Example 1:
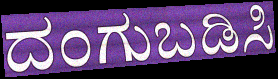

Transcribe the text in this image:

ದಂಗುಬಡಿಸಿ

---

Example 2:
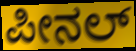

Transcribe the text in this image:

ಪೀನಲ್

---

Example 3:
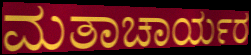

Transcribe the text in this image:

ಮತಾಚಾರ್ಯರ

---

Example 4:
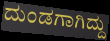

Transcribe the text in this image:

ದುಂಡಗಾಗಿದ್ದು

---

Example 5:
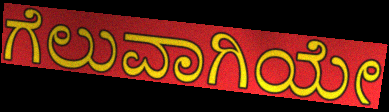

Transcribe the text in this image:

ಗೆಲುವಾಗಿಯೇ